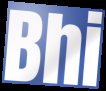
Bhi